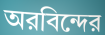
অরবিন্দের